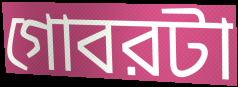
গোবরটা